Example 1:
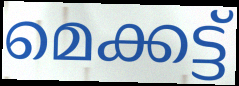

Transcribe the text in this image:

മെക്കട്ട്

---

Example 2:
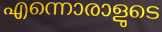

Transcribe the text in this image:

എന്നൊരാളുടെ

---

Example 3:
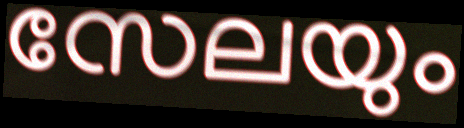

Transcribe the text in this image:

സേലയും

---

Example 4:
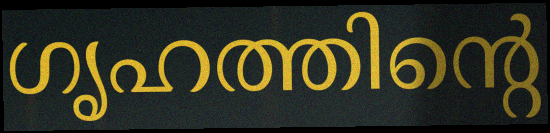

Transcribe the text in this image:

ഗൃഹത്തിന്റെ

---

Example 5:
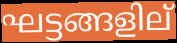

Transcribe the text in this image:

ഘട്ടങ്ങളില്